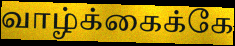
வாழ்க்கைக்கே